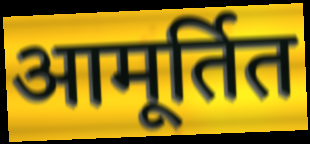
आमूर्तित